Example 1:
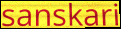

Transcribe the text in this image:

sanskari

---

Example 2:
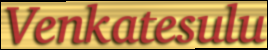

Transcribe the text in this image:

Venkatesulu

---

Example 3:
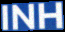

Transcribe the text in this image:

INH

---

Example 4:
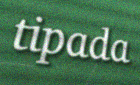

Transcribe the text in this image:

tipada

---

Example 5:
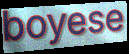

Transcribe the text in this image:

boyese